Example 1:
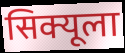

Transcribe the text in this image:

सिक्यूला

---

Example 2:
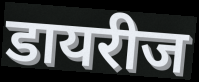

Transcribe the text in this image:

डायरीज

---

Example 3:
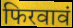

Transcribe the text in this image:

फिरवावं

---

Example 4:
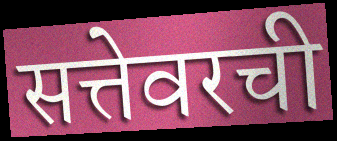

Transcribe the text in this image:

सत्तेवरची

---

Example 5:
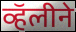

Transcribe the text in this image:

व्हॅलीने